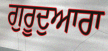
ਗੁਰੂਦੁਆਰਾ